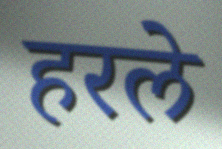
हरले